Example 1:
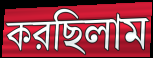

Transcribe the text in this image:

করছিলাম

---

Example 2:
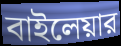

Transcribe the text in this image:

বাইলেয়ার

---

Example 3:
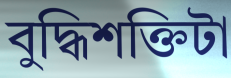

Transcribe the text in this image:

বুদ্ধিশক্তিটা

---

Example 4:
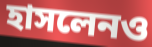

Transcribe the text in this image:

হাসলেনও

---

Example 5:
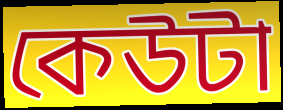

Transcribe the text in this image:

কেউটা